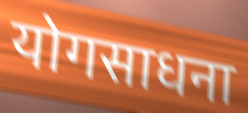
योगसाधना